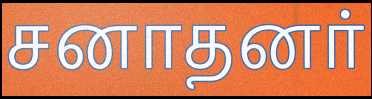
சனாதனர்